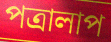
পত্ৰালাপ